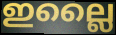
ഇല്ലൈ